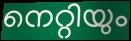
നെറ്റിയും